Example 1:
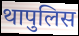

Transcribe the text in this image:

थापुलिस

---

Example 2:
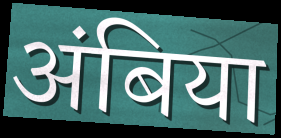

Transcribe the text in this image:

अंबिया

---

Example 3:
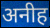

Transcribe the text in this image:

अनीह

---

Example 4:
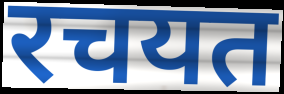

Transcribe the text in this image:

रचयत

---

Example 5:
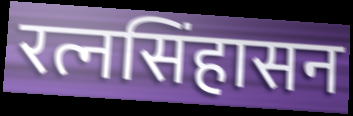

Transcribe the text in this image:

रत्नसिंहासन